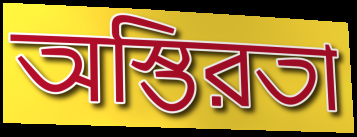
অস্তিরতা